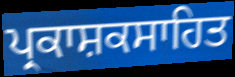
ਪ੍ਰਕਾਸ਼ਕਸਾਹਿਤ